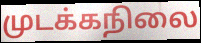
முடக்கநிலை